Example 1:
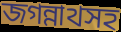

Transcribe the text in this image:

জগন্নাথসহ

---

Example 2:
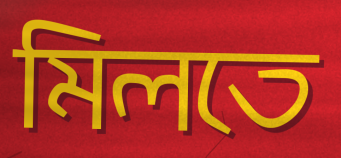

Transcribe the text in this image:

মিলতে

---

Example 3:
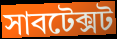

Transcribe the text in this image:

সাবটেক্সট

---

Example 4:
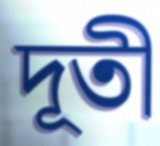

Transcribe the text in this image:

দূতী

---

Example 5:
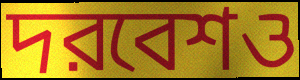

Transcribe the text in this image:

দরবেশও